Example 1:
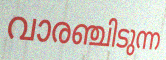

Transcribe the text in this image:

വാരഞ്ചിടുന്ന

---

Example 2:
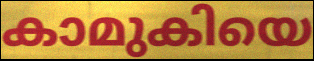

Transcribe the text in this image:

കാമുകിയെ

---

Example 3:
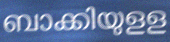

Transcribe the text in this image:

ബാക്കിയുളള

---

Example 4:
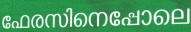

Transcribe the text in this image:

ഫേരസിനെപ്പോലെ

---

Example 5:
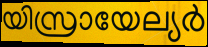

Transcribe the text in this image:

യിസ്രായേല്യർ